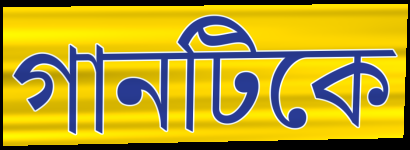
গানটিকে